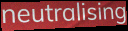
neutralising